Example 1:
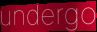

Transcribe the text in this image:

undergo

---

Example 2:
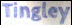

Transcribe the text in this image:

Tingley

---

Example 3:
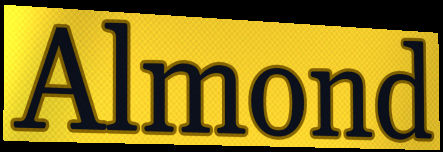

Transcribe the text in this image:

Almond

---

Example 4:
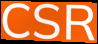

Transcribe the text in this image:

CSR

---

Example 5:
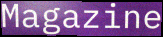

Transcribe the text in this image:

Magazine